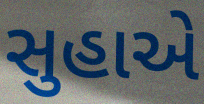
સુહાએ